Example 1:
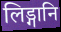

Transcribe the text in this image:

लिड्गानि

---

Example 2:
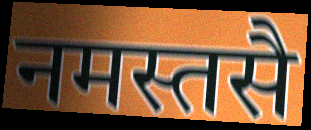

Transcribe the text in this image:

नमस्तसै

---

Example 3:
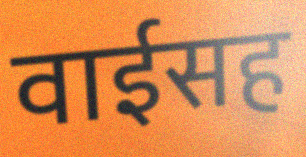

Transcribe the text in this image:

वाईसह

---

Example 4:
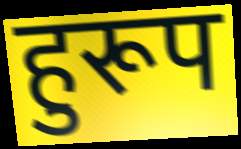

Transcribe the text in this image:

हुरूप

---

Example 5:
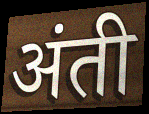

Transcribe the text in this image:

अंती